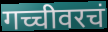
गच्चीवरचं